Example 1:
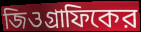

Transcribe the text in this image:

জিওগ্রাফিকের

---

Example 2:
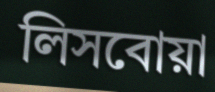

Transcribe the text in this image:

লিসবোয়া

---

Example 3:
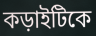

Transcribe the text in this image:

কড়াইটিকে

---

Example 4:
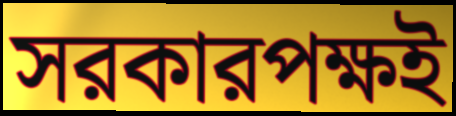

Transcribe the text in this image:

সরকারপক্ষই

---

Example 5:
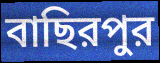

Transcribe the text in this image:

বাছিরপুর